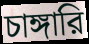
চাঙ্গারি